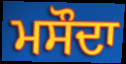
ਮਸੌਦਾ